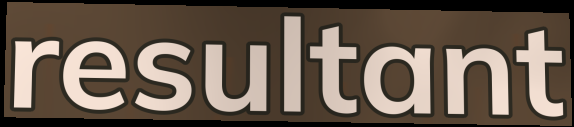
resultant